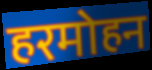
हरमोहन